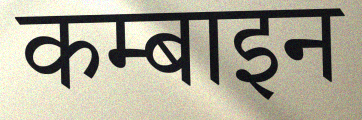
कम्बाइन